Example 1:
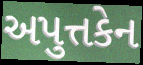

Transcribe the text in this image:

અપુત્તકેન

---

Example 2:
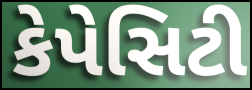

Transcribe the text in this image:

કેપેસિટી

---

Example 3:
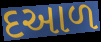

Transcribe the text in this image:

દઆળ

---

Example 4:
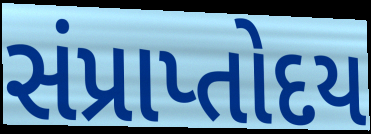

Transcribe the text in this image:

સંપ્રાપ્તોદય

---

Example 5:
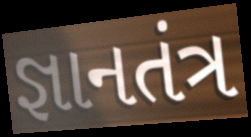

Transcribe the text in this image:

જ્ઞાનતંત્ર